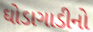
ઘોડાગાડીનો